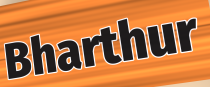
Bharthur